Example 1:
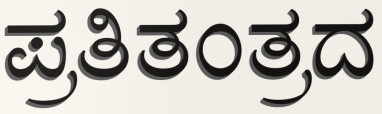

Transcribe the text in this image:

ಪ್ರತಿತಂತ್ರದ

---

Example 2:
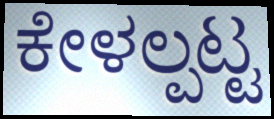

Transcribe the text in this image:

ಕೇಳಲ್ಪಟ್ಟ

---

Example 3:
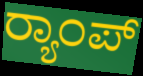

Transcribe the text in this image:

ರ‍್ಯಾಂಪ್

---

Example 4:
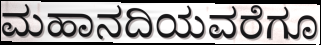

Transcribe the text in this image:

ಮಹಾನದಿಯವರೆಗೂ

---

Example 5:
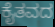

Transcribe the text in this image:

ಕೈತವದ